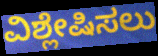
ವಿಶ್ಲೇಷಿಸಲು